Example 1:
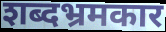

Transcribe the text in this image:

शब्दभ्रमकार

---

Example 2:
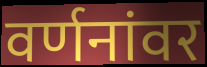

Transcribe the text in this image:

वर्णनांवर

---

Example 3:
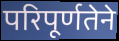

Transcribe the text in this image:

परिपूर्णतेने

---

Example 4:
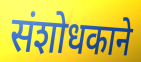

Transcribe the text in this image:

संशोधकाने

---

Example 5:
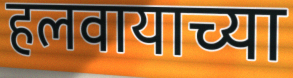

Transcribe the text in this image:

हलवायाच्या